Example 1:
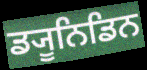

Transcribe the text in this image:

ਡ੍ਯੂਨਿਡਿਨ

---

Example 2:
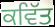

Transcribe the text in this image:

ਕਵਿੱਤ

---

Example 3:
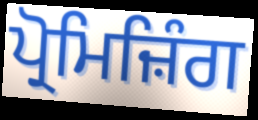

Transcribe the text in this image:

ਪ੍ਰੋਮਿਜ਼ਿੰਗ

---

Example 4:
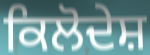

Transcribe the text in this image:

ਕਿਲੋਦੇਸ਼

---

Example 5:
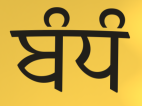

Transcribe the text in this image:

ਬੰਧੰ